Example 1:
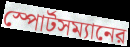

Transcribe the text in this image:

স্পোর্টসম্যানের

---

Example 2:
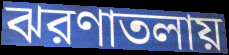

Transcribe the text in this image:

ঝরণাতলায়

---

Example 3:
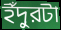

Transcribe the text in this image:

ইঁদুরটা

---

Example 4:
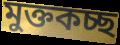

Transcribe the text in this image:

মুক্তকচ্ছ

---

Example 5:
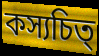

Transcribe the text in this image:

কস্যচিত্